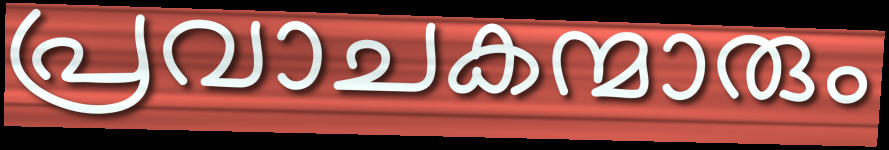
പ്രവാചകന്മാരും